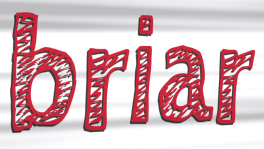
briar